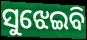
ସୁଝେଇବି